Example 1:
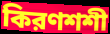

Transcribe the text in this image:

কিরণশশী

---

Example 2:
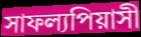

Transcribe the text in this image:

সাফল্যপিয়াসী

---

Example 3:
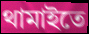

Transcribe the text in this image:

থামাইতে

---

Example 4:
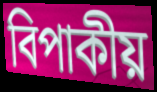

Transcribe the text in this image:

বিপাকীয়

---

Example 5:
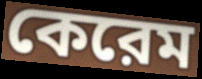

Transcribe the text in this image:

কেরেম